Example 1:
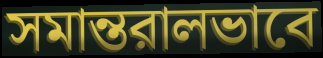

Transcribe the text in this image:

সমান্তরালভাবে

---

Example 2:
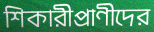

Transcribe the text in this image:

শিকারীপ্রাণীদের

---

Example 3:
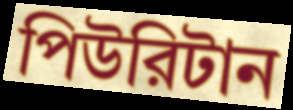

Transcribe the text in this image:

পিউরিটান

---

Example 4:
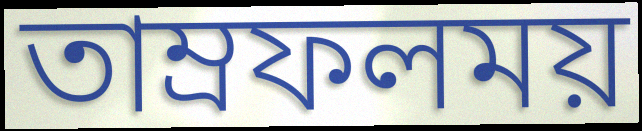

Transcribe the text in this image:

তাম্রফলময়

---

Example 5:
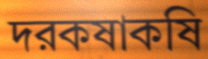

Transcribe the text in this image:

দরকষাকষি